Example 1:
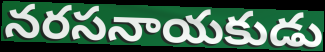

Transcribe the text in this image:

నరసనాయకుడు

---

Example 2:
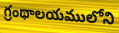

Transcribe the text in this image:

గ్రంథాలయములోని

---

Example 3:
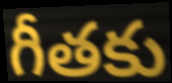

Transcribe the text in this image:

గీతకు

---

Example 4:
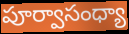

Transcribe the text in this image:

పూర్వాసంధ్యా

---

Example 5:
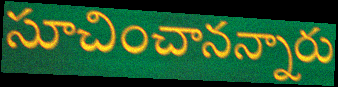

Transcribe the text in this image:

సూచించానన్నారు